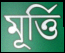
মূৰ্ত্তি